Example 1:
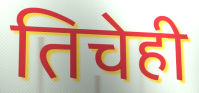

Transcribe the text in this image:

तिचेही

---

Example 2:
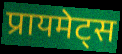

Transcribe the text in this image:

प्रायमेट्स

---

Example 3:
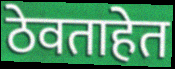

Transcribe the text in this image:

ठेवताहेत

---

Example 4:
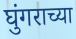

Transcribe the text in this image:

घुंगराच्या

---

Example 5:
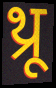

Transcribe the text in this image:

थ्रू